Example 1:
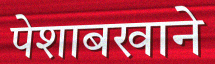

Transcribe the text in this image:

पेशाबखाने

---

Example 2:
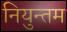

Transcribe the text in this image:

नियुन्तम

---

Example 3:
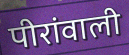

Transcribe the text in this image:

पीरांवाली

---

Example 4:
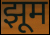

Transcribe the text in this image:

झूम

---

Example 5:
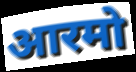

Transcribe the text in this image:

आरमो